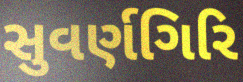
સુવર્ણગિરિ